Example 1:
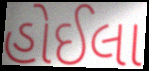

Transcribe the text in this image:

હોઈલા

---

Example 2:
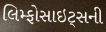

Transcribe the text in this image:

લિમ્ફોસાઇટ્સની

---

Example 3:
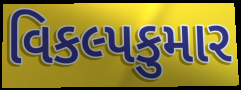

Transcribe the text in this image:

વિકલ્પકુમાર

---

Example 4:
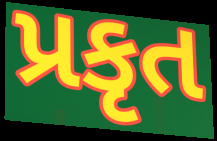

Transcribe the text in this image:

પ્રકૃત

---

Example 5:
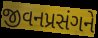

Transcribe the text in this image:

જીવનપ્રસંગને